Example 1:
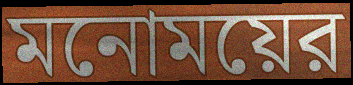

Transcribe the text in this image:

মনোময়ের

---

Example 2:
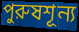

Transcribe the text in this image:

পুরুষশূন্য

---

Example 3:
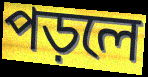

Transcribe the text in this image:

পড়লে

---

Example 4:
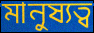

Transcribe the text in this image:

মানুষ্যত্ব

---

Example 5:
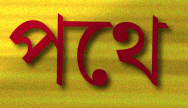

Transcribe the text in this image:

পথে